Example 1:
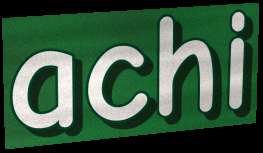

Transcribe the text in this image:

achi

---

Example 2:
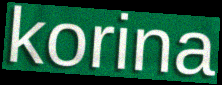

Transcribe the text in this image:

korina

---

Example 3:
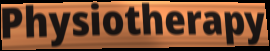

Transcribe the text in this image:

Physiotherapy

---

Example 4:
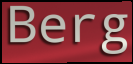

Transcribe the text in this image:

Berg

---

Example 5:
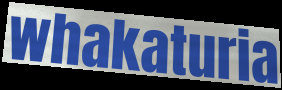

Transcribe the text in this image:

whakaturia